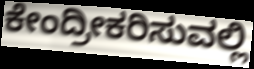
ಕೇಂದ್ರೀಕರಿಸುವಲ್ಲಿ